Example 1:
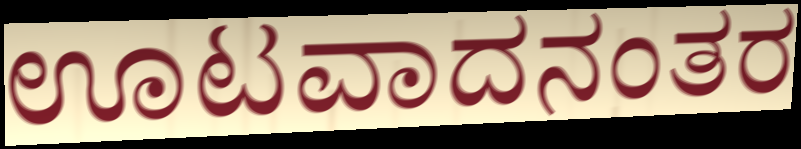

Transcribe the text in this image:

ಊಟವಾದನಂತರ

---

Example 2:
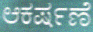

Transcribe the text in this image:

ಆಕರ್ಷಣೆ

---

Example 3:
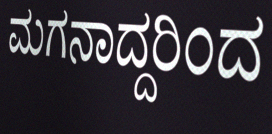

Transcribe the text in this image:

ಮಗನಾದ್ದರಿಂದ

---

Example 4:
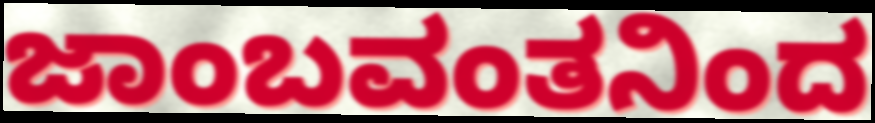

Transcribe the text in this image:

ಜಾಂಬವಂತನಿಂದ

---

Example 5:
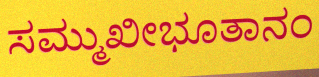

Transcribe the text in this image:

ಸಮ್ಮುಖೀಭೂತಾನಂ